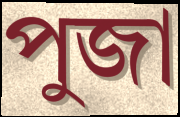
পুজা